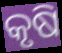
କୃଷି